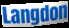
Langdon